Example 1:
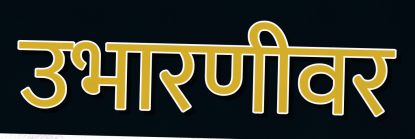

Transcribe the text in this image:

उभारणीवर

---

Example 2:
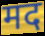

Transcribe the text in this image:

मद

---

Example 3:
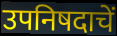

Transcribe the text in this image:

उपनिषदाचें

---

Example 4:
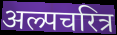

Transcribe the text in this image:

अल्पचरित्र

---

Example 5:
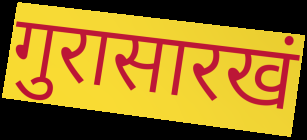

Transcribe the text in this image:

गुरासारखं